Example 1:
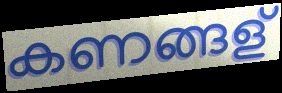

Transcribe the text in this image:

കണങ്ങള്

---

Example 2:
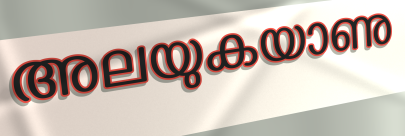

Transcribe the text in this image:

അലയുകയാണു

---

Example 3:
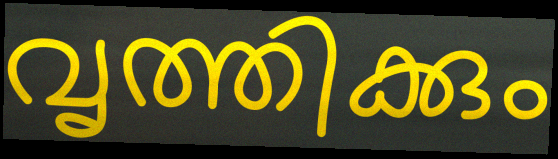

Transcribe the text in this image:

വൃത്തിക്കും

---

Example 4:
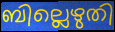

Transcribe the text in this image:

ബില്ലെഴുതി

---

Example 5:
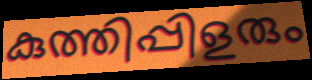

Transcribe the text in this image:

കുത്തിപ്പിളരും